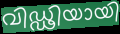
വിഡ്ഢിയായി